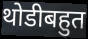
थोडीबहुत